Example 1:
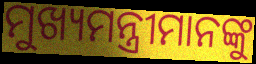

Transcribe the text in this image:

ମୁଖ୍ୟମନ୍ତ୍ରୀମାନଙ୍କୁ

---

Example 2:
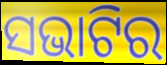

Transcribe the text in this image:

ସଭାଟିର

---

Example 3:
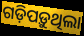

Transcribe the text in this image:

ଗଡ଼ିପଡ଼ୁଥିଲା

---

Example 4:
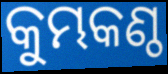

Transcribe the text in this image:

କୁମ୍ଭକଣ୍ଠ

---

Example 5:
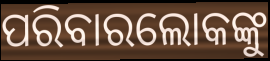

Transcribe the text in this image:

ପରିବାରଲୋକଙ୍କୁ